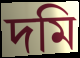
দমি